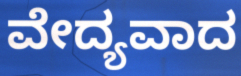
ವೇದ್ಯವಾದ